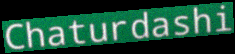
Chaturdashi